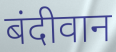
बंदीवान